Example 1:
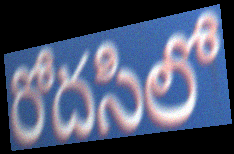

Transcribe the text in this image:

రోదసిలో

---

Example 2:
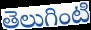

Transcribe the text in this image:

తెలుగింటి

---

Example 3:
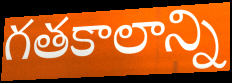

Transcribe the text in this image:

గతకాలాన్ని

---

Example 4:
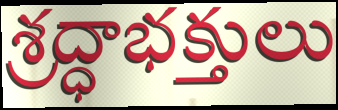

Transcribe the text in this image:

శ్రద్ధాభక్తులు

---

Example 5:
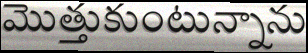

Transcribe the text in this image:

మొత్తుకుంటున్నాను